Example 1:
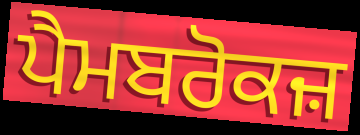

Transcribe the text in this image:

ਪੈਮਬਰੋਕਜ਼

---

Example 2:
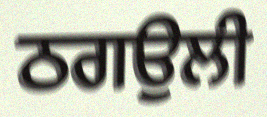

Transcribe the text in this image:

ਠਗਉਲੀ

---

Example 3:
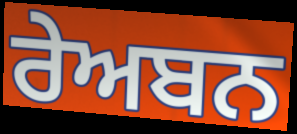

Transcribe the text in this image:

ਰੇਅਬਨ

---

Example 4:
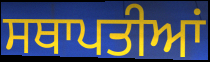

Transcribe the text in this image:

ਸਥਾਪਤੀਆਂ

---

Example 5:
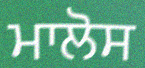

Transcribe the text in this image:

ਮਾਲੋਸ